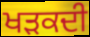
ਖੜਕਦੀ